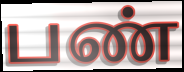
பண்